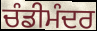
ਚੰਡੀਮੰਦਰ